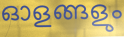
ഓളങ്ങളും